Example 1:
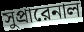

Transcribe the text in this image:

সুপ্রারেনাল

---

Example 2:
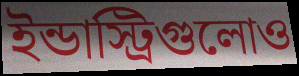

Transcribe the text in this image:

ইন্ডাস্ট্রিগুলোও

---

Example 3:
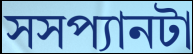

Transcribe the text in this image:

সসপ্যানটা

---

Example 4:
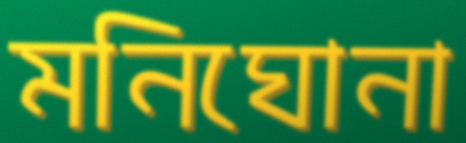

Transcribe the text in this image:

মনিঘোনা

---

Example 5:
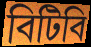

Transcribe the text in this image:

বিটিবি